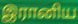
இரானிய